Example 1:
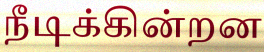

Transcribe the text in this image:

நீடிக்கின்றன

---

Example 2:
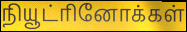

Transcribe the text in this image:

நியூட்ரினோக்கள்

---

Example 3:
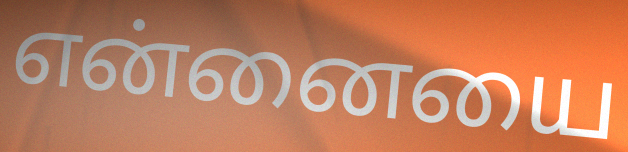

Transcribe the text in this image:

என்னையை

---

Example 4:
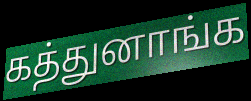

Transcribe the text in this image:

கத்துனாங்க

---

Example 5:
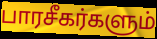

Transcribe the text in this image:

பாரசீகர்களும்